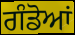
ਗੰਡੋਆਂ